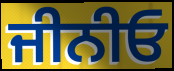
ਜੀਨੀਓ